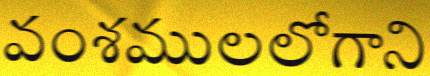
వంశములలోగాని